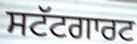
ਸਟੱਟਗਾਰਟ